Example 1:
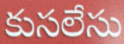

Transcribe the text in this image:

కుసలేసు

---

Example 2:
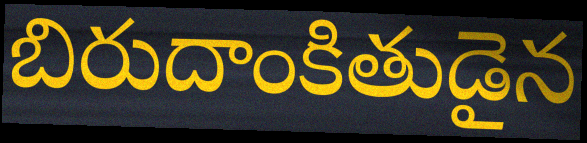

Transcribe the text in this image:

బిరుదాంకితుడైన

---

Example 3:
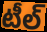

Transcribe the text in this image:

టీల్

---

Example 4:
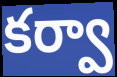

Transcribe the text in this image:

కర్వా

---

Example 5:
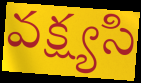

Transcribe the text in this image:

వక్ష్యసి